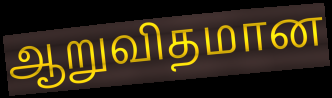
ஆறுவிதமான